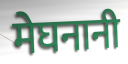
मेघनानी